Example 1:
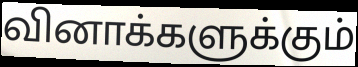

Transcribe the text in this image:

வினாக்களுக்கும்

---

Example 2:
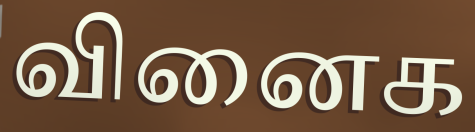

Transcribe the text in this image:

வினைக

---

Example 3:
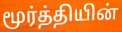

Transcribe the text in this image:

மூர்த்தியின்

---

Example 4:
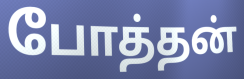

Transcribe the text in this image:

போத்தன்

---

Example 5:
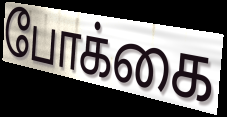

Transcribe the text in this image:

போக்கை